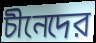
চীনেদের